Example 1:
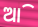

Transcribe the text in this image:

ଆି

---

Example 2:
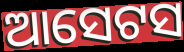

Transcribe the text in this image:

ଆସେଟସ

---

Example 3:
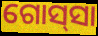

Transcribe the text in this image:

ଗୋସ୍‌ସା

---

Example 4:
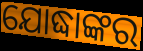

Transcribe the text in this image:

ଯୋଦ୍ଧାଙ୍କର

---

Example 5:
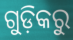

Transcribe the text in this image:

ଗୁଡ଼ିକରୁ